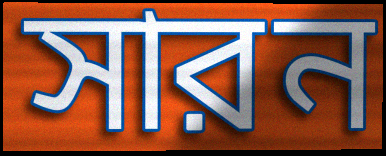
সারন